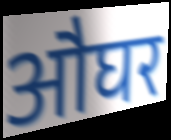
औघर